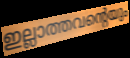
ഇല്ലാത്തവന്റെയും